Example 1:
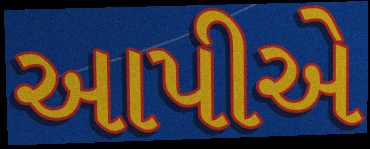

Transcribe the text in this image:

આપીએ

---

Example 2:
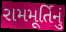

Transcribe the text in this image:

રામમૂર્તિનું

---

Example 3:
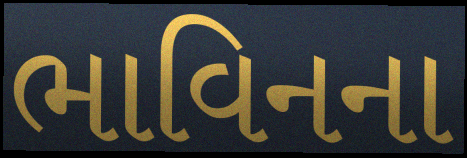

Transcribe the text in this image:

ભાવિનના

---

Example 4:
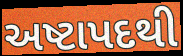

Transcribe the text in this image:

અષ્ટાપદથી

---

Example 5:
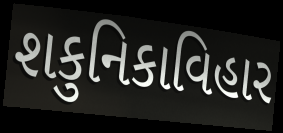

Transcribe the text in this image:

શકુનિકાવિહાર